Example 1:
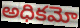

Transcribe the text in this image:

అధికమో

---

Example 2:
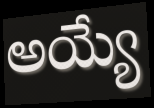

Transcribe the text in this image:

అయ్యే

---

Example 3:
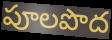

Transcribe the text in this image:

పూలపొద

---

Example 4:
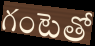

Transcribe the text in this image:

గంటెతో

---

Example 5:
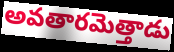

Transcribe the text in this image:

అవతారమెత్తాడు